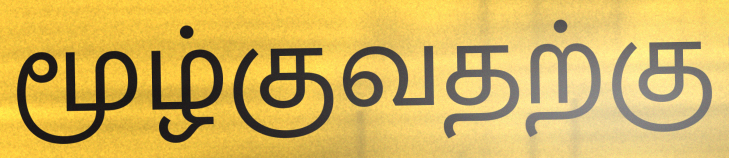
மூழ்குவதற்கு